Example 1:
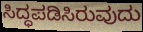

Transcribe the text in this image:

ಸಿದ್ಧಪಡಿಸಿರುವುದು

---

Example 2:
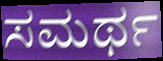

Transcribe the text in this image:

ಸಮರ್ಥ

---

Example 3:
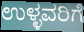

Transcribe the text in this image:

ಉಳ್ಳವರಿಗೆ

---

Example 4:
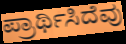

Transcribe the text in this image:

ಪ್ರಾರ್ಥಿಸಿದೆವು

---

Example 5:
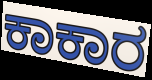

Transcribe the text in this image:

ಕಾಕಾರ